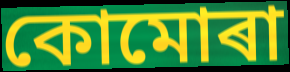
কোমোৰা